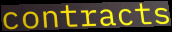
contracts